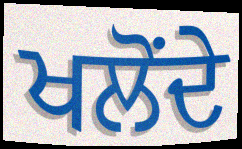
ਖਲੋਂਦੇ